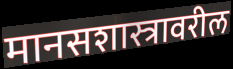
मानसशास्त्रावरील